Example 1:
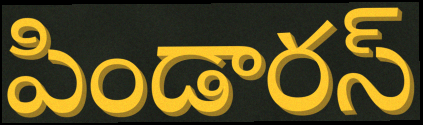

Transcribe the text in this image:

పిండారస్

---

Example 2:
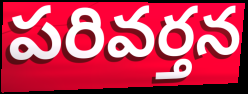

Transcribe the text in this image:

పరివర్తన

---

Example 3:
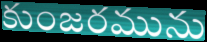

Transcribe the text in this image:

కుంజరమును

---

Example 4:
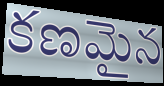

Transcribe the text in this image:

కణమైన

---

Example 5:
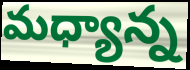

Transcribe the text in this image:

మధ్యాన్న